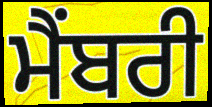
ਮੈਂਬਰੀ